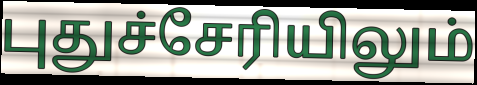
புதுச்சேரியிலும்